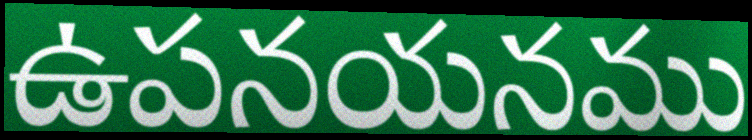
ఉపనయనము